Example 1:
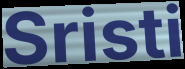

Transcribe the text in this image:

Sristi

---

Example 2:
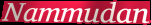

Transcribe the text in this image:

Nammudan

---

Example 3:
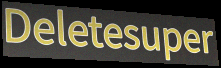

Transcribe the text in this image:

Deletesuper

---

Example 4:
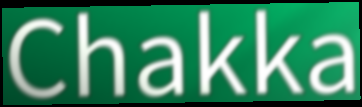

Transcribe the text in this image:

Chakka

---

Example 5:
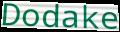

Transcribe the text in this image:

Dodake